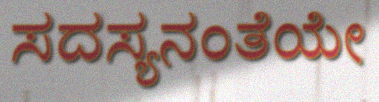
ಸದಸ್ಯನಂತೆಯೇ